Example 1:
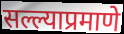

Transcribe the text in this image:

सल्ल्याप्रमाणे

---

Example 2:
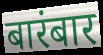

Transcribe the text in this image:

बारंबार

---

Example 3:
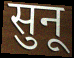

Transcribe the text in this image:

सुनू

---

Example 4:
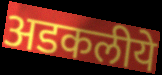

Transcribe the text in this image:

अडकलीये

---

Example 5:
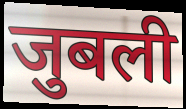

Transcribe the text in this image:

जुबली